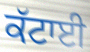
ਕੱਟਾਈ